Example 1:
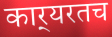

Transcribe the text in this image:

कार्यरतच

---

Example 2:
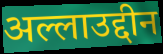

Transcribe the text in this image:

अल्लाउद्दीन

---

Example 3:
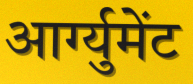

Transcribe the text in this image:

आर्ग्युमेंट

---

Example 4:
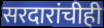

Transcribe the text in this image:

सरदारांचीही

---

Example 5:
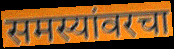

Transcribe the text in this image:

समस्यांवरचा